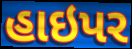
હાઇપર